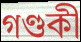
গণ্ডকী